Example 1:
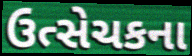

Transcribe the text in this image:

ઉત્સેચકના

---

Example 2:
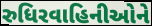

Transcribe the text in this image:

રુધિરવાહિનીઓને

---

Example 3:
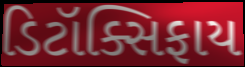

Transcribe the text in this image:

ડિટૉક્સિફાય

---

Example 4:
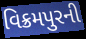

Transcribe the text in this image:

વિક્રમપુરની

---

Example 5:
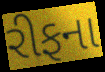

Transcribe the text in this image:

રીફના